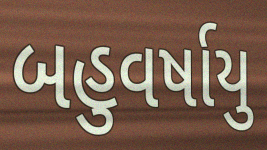
બહુવર્ષાયુ